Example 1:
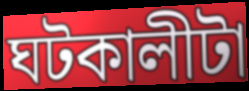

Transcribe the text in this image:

ঘটকালীটা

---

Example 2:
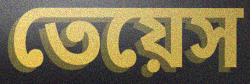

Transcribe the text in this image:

তেয়েস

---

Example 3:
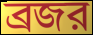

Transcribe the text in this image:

ব্রজর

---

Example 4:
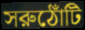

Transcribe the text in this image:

সরুঠোঁটি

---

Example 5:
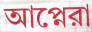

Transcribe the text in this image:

আপ্নেরা